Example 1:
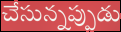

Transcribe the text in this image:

చేసున్నప్పుడు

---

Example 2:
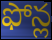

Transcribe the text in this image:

ఫోన్ల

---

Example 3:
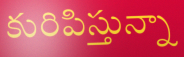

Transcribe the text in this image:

కురిపిస్తున్నా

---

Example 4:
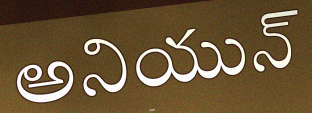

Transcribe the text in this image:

అనియున్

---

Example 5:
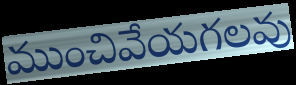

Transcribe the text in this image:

ముంచివేయగలవు